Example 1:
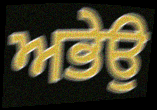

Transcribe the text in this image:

ਅਭੇਉ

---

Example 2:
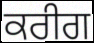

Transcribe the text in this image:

ਕਰੀਗ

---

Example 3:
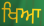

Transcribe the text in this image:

ਖਿਆ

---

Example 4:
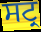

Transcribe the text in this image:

ਸਟ੍ਰ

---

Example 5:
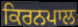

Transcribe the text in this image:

ਕਿਰਨਪਾਲ